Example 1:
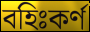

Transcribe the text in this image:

বহিঃকর্ণ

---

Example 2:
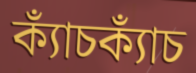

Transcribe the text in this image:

ক্যাঁচক্যাঁচ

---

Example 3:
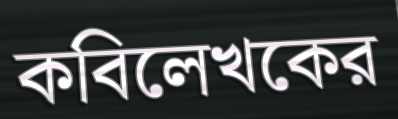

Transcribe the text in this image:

কবিলেখকের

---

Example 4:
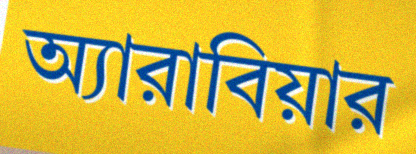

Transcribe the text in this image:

অ্যারাবিয়ার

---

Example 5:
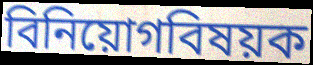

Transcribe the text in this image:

বিনিয়োগবিষয়ক